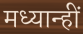
मध्यान्हीं